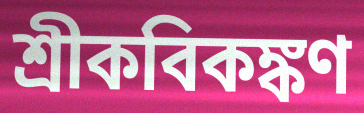
শ্রীকবিকঙ্কণ